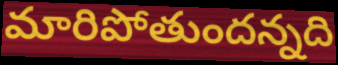
మారిపోతుందన్నది